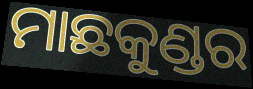
ମାଛକୁଣ୍ଡର